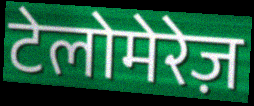
टेलोमेरेज़